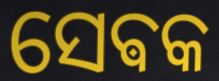
ସେଵକ